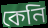
কেনি